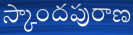
స్కాందపురాణ